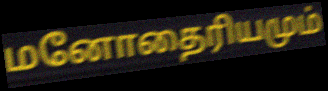
மனோதைரியமும்